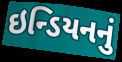
ઇન્ડિયનનું